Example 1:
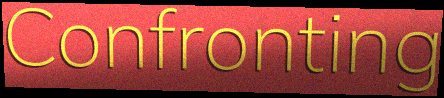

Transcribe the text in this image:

Confronting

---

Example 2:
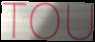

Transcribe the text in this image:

TOU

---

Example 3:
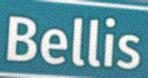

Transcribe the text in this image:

Bellis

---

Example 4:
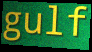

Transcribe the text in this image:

gulf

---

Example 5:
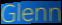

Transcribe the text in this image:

Glenn